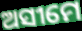
ଅସୀମେ